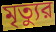
মৃত্যুর